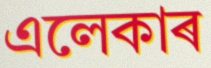
এলেকাৰ